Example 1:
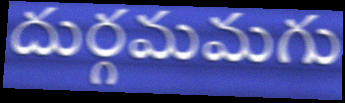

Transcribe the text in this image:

దుర్గమమగు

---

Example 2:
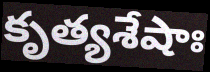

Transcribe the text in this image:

కృత్యశేషాః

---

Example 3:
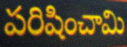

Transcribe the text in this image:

పరిషించామి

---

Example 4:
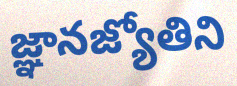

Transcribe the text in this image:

జ్ఞానజ్యోతిని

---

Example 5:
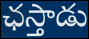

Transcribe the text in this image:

ఛస్తాడు